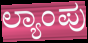
ಲ್ಯಾಂಪು